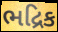
ભદ્રિક